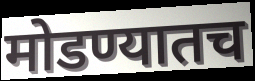
मोडण्यातच